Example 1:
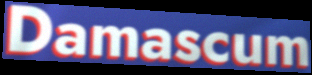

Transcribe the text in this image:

Damascum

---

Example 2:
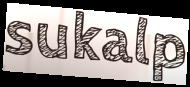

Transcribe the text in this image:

sukalp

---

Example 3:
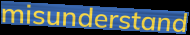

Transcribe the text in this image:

misunderstand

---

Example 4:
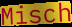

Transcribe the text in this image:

Misch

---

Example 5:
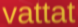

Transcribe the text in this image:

vattat